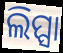
ଲିପ୍ସା